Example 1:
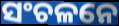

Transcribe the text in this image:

ସଂଚଳନେ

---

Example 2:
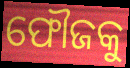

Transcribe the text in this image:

ଫୌଜକୁ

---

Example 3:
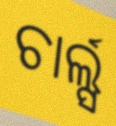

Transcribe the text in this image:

ଚାର୍ଲ୍ସ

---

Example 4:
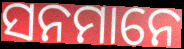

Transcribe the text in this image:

ସନମାନେ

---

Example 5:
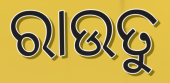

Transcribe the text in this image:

ରାଉତୁ